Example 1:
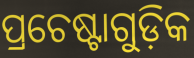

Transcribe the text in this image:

ପ୍ରଚେଷ୍ଟାଗୁଡ଼ିକ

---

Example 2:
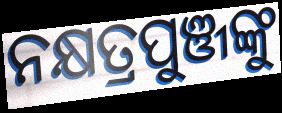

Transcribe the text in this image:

ନକ୍ଷତ୍ରପୁଞ୍ଜଙ୍କୁ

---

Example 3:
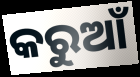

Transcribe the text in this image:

କରୁଆଁ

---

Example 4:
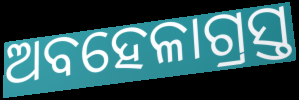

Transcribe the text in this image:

ଅବହେଳାଗ୍ରସ୍ତ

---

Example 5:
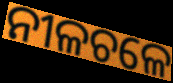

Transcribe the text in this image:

ନୀଳଚଳେ